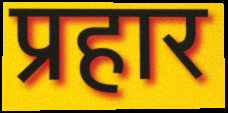
प्रहार